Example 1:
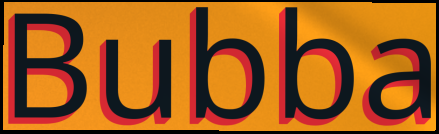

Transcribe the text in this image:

Bubba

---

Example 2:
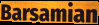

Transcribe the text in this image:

Barsamian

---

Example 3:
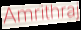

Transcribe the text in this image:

Amrithraj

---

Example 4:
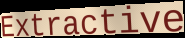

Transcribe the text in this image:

Extractive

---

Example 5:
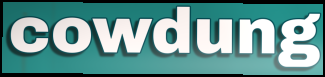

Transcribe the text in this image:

cowdung